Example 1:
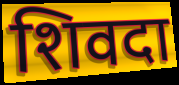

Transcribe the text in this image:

शिवदा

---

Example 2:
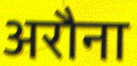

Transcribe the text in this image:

अरौना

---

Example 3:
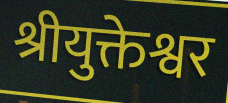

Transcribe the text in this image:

श्रीयुक्तेश्वर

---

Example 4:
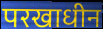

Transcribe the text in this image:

परखाधीन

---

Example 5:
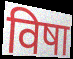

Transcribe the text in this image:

विषा